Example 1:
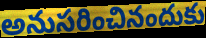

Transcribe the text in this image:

అనుసరించినందుకు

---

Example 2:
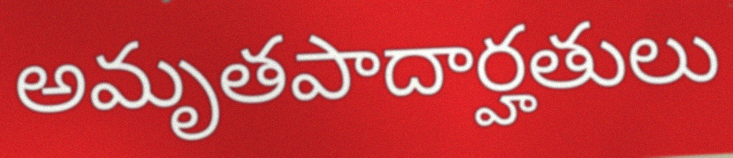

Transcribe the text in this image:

అమృతపాదార్హతులు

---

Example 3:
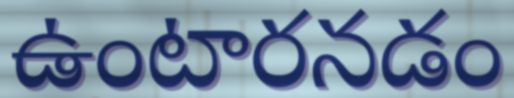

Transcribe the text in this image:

ఉంటారనడం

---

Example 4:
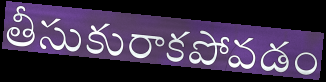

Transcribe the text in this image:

తీసుకురాకపోవడం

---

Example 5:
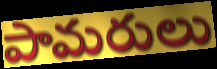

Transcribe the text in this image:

పామరులు